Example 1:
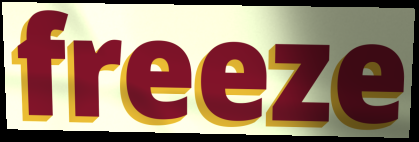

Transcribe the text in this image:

freeze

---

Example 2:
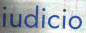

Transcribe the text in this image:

iudicio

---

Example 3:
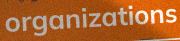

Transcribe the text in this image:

organizations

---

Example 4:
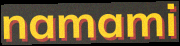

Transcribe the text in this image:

namami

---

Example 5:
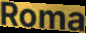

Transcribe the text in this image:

Roma